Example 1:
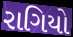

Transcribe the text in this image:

રાગિયો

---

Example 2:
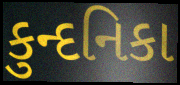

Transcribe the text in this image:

કુન્દનિકા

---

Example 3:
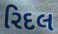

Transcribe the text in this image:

રિદલ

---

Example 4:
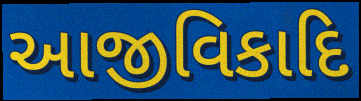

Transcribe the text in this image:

આજીવિકાદિ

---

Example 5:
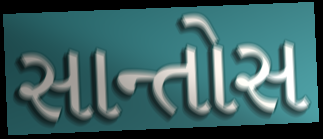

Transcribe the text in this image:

સાન્તોસ